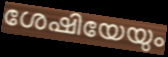
ശേഷിയേയും